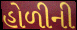
હોળીની